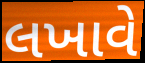
લખાવે